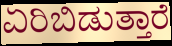
ಏರಿಬಿಡುತ್ತಾರೆ